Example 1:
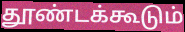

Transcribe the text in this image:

தூண்டக்கூடும்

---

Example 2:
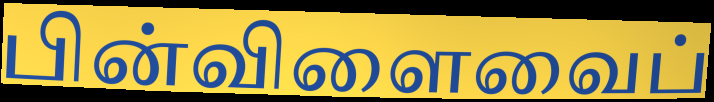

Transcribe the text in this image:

பின்விளைவைப்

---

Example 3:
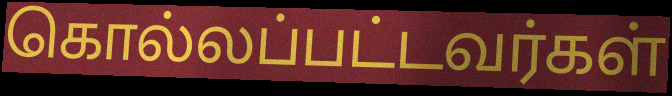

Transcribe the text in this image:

கொல்லப்பட்டவர்கள்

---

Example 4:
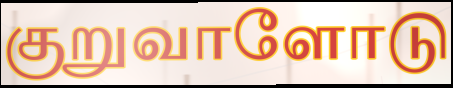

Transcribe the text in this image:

குறுவாளோடு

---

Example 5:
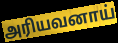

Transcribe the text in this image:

அரியவனாய்